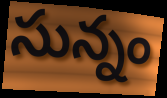
సున్నం